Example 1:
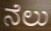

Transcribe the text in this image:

ನೆಲು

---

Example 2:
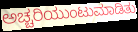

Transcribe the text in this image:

ಅಚ್ಚರಿಯುಂಟುಮಾಡಿತು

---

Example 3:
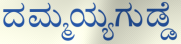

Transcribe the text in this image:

ದಮ್ಮಯ್ಯಗುಡ್ಡೆ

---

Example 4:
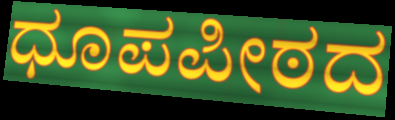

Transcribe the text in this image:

ಧೂಪಪೀಠದ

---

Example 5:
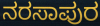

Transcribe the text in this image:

ನರಸಾಪುರ